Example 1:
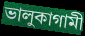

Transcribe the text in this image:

ভালুকাগামী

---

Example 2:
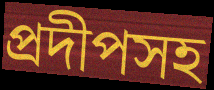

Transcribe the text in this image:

প্রদীপসহ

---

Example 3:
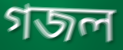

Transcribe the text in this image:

গজল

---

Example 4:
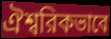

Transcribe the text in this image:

ঐশ্বরিকভাবে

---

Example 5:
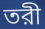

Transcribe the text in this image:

তরী